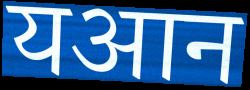
यआन